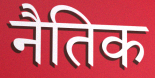
नैतिक